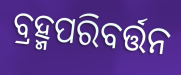
ବ୍ରହ୍ମପରିବର୍ତ୍ତନ